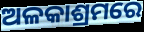
ଅଳକାଶ୍ରମରେ